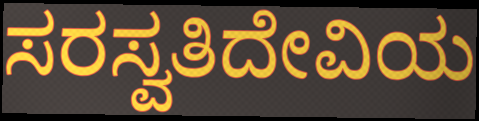
ಸರಸ್ವತಿದೇವಿಯ